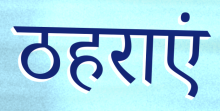
ठहराएं